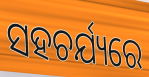
ସହଚର୍ଯ୍ୟରେ